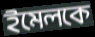
ইমেলকে